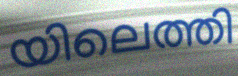
യിലെത്തി